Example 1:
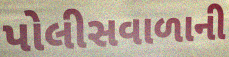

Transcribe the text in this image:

પોલીસવાળાની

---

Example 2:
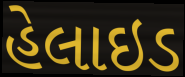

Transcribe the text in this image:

હેલાઇડ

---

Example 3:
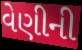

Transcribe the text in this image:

વેણીની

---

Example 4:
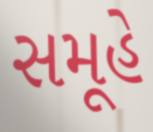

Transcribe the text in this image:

સમૂહે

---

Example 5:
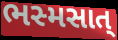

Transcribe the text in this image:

ભસ્મસાત્